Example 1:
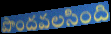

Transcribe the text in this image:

పొందవలసింది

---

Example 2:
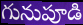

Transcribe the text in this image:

గునుపూడి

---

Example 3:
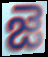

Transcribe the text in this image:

జె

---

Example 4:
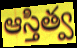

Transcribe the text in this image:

ఆస్తిత్వ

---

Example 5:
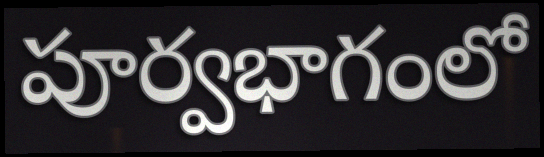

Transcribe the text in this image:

పూర్వభాగంలో